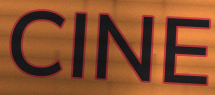
CINE